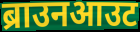
ब्राउनआउट